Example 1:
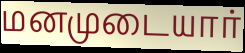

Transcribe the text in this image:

மனமுடையார்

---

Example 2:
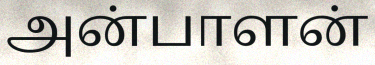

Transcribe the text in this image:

அன்பாளன்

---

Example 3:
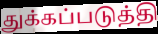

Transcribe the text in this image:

துக்கப்படுத்தி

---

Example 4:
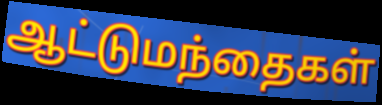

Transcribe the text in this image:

ஆட்டுமந்தைகள்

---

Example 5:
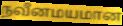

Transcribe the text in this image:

நவீனமயமான